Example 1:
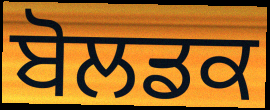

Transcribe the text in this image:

ਬੋਲਡਕ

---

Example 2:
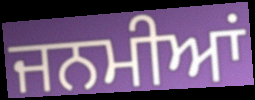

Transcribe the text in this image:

ਜਨਮੀਆਂ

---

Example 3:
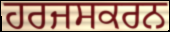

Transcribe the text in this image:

ਹਰਜਸਕਰਨ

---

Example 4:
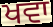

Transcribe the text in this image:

ਖਵਾ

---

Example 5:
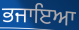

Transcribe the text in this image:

ਭਜਾਇਆ